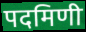
पदमिणी